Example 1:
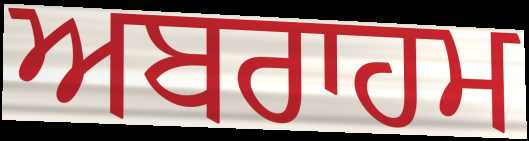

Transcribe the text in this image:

ਅਬਰਾਹਮ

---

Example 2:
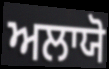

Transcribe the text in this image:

ਅਲਾਯੋ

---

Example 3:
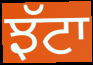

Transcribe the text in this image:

ਝੱਟਾ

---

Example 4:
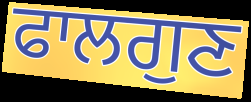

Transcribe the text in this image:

ਫਾਲਗੁਣ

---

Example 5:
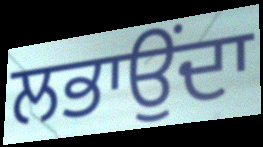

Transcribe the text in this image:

ਲਭਾਉਂਦਾ